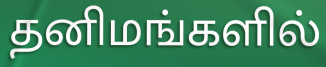
தனிமங்களில்